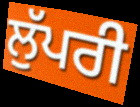
ਲੁੱਪਰੀ